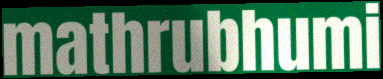
mathrubhumi